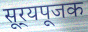
सूर्यपूजक